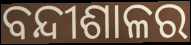
ବନ୍ଦୀଶାଳର